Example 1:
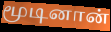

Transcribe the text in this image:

மூடினான்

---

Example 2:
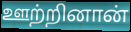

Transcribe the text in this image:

ஊற்றினான்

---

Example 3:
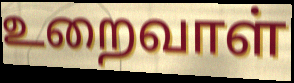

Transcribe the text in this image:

உறைவாள்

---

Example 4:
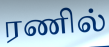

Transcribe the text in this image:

ரணில்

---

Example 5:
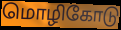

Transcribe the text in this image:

மொழிகோடு